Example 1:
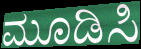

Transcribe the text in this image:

ಮೂಡಿಸಿ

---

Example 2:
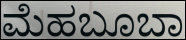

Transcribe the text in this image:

ಮೆಹಬೂಬಾ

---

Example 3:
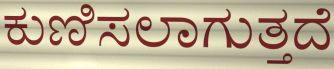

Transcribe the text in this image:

ಕುಣಿಸಲಾಗುತ್ತದೆ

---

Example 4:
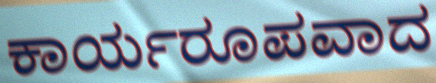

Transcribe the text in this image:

ಕಾರ್ಯರೂಪವಾದ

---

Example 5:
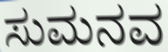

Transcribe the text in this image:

ಸುಮನವ